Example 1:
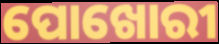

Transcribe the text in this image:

ପୋଖୋରୀ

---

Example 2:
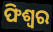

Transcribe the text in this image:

ଫିଶ୍ୱର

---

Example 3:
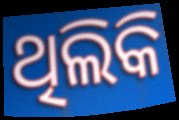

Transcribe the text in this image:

ଥିଲିକି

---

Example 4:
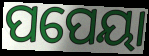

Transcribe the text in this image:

ପପେୟା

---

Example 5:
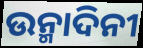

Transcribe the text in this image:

ଉନ୍ମାଦିନୀ